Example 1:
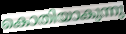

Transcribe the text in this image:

കൊതിയാകുന്നു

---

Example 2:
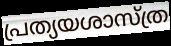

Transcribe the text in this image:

പ്രത്യയശാസ്ത്ര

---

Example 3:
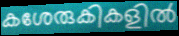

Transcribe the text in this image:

കശേരുകികളിൽ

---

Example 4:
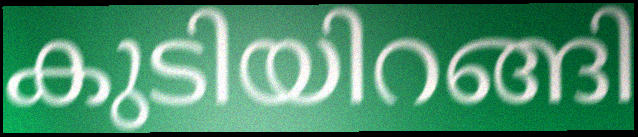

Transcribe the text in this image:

കുടിയിറങ്ങി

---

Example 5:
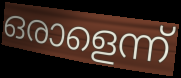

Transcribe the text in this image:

ഒരാളെന്ന്